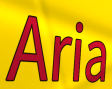
Aria